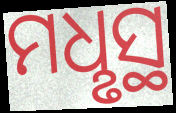
ମଧୢସ୍ଥ